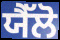
ਯੈੱਲੋ